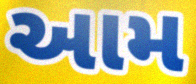
આમ